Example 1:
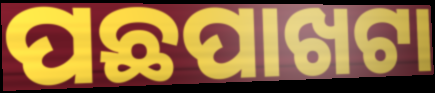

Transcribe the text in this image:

ପଛପାଖଟା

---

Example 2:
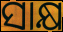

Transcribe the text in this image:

ସାକ୍ଷ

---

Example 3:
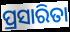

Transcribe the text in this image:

ପ୍ରସାରିତା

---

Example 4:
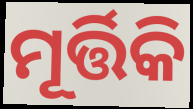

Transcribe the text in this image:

ମୂର୍ତ୍ତିକି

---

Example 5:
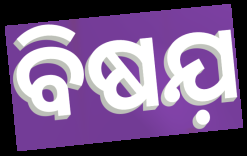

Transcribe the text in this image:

ବିଷଯ଼